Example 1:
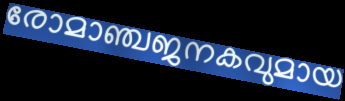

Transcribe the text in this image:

രോമാഞ്ചജനകവുമായ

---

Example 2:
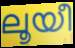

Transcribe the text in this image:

ലൂയീ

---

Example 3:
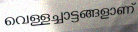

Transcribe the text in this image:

വെള്ളച്ചാട്ടങ്ങളാണ്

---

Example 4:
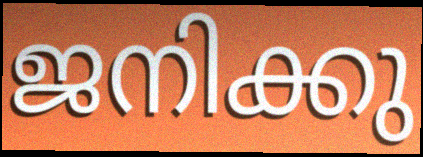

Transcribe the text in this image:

ജനിക്കു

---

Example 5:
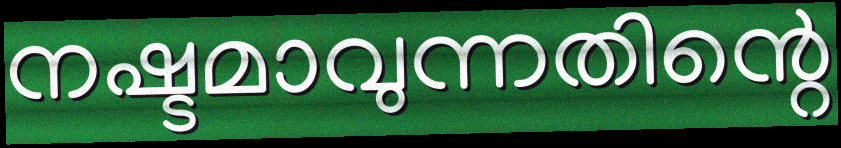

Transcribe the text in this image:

നഷ്ടമാവുന്നതിന്റെ